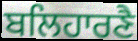
ਬਲਿਹਾਰਣੈ